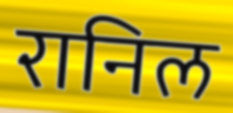
रानिल